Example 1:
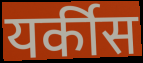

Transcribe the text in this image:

यर्कीस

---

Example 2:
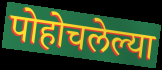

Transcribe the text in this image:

पोहोचलेल्या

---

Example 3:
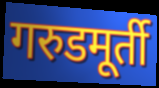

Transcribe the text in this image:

गरुडमूर्ती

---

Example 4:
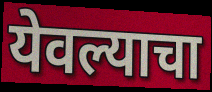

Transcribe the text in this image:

येवल्याचा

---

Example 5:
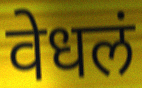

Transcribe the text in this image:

वेधलं